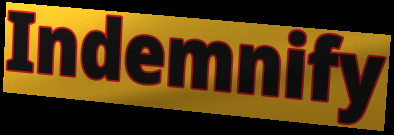
Indemnify